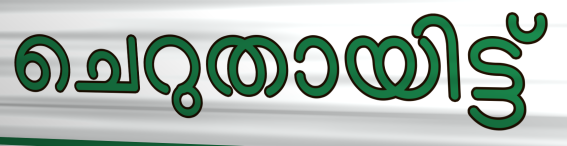
ചെറുതായിട്ട്